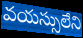
వయస్సులేని